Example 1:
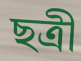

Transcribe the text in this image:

ছত্রী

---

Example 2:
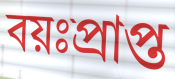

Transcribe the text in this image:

বয়ঃপ্রাপ্ত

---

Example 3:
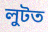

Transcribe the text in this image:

লুটত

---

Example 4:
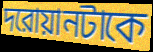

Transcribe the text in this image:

দরোয়ানটাকে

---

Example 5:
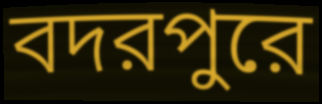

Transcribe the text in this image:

বদরপুরে